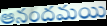
ఆనందమయి